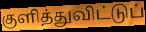
குளித்துவிட்டுப்